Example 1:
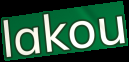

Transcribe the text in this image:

lakou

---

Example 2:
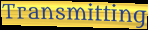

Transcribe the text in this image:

Transmitting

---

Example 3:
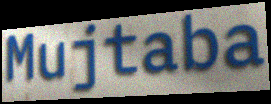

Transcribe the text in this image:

Mujtaba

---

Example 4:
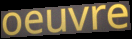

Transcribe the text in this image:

oeuvre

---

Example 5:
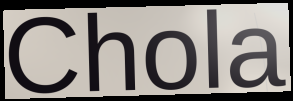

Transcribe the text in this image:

Chola